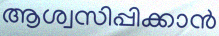
ആശ്വസിപ്പിക്കാൻ